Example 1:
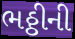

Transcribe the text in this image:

ભઠ્ઠીની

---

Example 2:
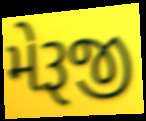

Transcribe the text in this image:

મેરૂજી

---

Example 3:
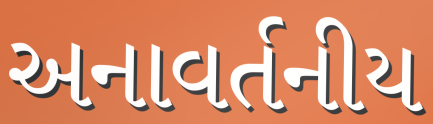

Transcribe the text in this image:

અનાવર્તનીય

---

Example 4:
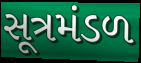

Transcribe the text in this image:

સૂત્રમંડળ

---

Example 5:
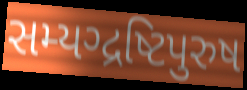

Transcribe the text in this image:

સમ્યગ્દ્રષ્ટિપુરુષ